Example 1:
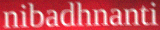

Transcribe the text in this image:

nibadhnanti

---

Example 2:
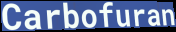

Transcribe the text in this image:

Carbofuran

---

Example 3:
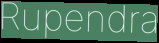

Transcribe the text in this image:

Rupendra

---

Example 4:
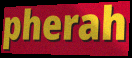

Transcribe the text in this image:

pherah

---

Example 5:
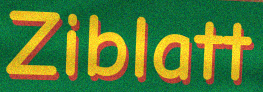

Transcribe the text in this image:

Ziblatt